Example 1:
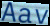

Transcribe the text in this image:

Aav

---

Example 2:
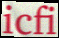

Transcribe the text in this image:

icfi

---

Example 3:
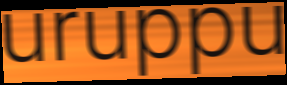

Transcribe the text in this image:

uruppu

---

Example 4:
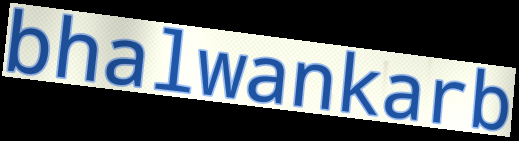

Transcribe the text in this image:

bhalwankarb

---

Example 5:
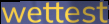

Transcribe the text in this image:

wettest